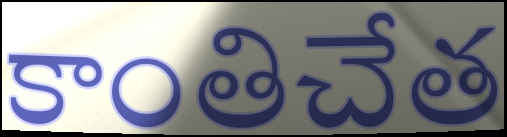
కాంతిచేత